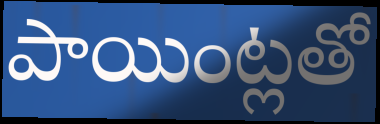
పాయింట్లతో